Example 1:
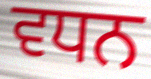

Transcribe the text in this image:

ਵਧਨ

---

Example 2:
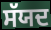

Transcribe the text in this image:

ਸੱਯਦ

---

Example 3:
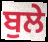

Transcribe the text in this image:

ਬੁਲੇ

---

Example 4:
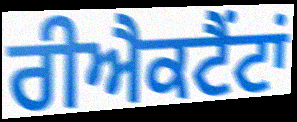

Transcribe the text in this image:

ਰੀਐਕਟੈਂਟਾਂ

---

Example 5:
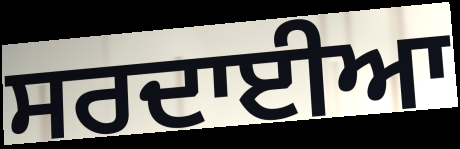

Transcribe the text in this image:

ਸਰਦਾਈਆ